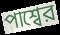
পাশ্বের